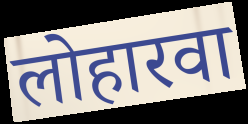
लोहारवा